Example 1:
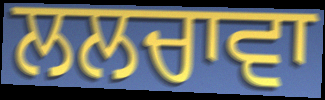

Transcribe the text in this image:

ਲਲਚਾਵਾ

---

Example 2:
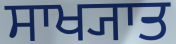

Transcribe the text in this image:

ਸਾਖ੍ਯਾਤ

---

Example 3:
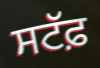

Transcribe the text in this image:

ਸਟੱਫ਼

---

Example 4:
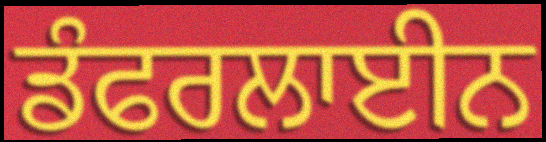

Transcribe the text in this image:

ਡੰਫਰਲਾਈਨ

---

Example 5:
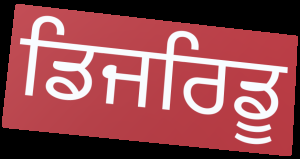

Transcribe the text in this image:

ਡਿਜਰਿਡੂ